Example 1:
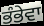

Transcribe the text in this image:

ਭੰਭੇਵਾ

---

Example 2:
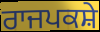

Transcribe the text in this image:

ਰਾਜਪਕਸ਼ੇ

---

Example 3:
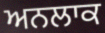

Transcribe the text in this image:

ਅਨਲਾਕ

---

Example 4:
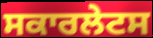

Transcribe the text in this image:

ਸਕਾਰਲੇਟਸ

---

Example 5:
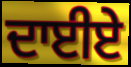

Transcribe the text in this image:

ਦਾਈਏ